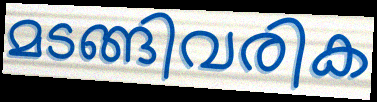
മടങ്ങിവരിക